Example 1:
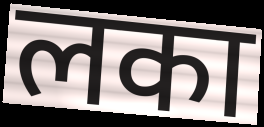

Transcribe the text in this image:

लका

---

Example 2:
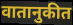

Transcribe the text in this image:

वातानुकीत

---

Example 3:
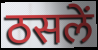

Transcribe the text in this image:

ठसलें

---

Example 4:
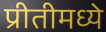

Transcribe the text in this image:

प्रीतीमध्ये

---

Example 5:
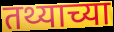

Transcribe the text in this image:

तथ्याच्या